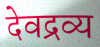
देवद्रव्य